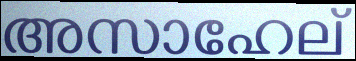
അസാഹേല്